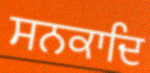
ਸਨਕਾਦਿ